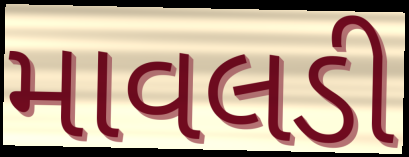
માવલડી